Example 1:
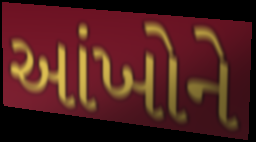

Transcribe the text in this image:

આંખોને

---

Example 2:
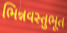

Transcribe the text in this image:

ભિન્નવસ્તુભૂત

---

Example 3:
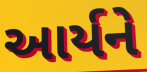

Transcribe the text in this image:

આર્યને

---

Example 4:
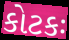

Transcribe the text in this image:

કોટકઃ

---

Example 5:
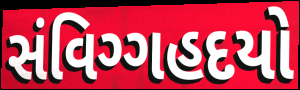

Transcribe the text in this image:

સંવિગ્ગહદયો